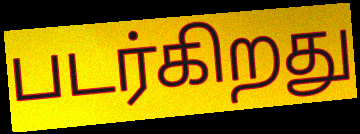
படர்கிறது